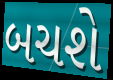
બચશે